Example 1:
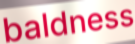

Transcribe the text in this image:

baldness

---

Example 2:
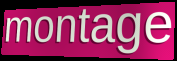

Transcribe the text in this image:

montage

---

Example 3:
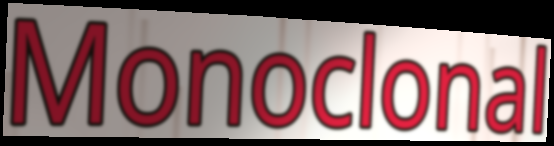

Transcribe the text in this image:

Monoclonal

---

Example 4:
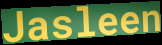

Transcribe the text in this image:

Jasleen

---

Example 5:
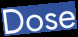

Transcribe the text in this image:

Dose